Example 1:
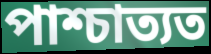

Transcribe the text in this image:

পাশ্চাত্যত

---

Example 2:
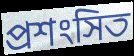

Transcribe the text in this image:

প্ৰশংসিত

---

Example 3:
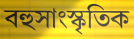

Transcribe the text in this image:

বহুসাংস্কৃতিক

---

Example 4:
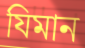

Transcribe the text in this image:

যিমান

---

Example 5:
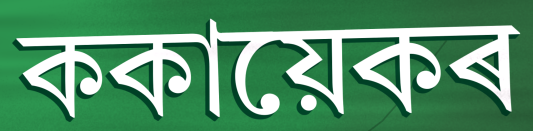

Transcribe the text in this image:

ককায়েকৰ